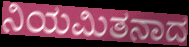
ನಿಯಮಿತನಾದ